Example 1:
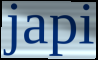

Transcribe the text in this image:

japi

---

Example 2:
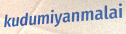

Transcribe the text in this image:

kudumiyanmalai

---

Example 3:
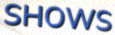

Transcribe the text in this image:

SHOWS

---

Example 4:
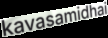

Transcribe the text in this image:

kavasamidhai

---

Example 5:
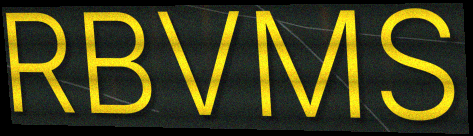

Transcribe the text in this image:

RBVMS